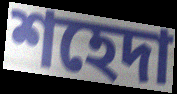
শহেদা